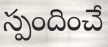
స్పందించే